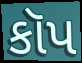
કૉપ